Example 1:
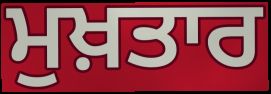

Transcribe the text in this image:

ਮੁਖ਼ਤਾਰ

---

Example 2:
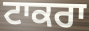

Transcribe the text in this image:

ਟਾਕਰਾ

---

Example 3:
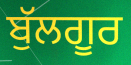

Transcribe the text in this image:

ਬੁੱਲਗੂਰ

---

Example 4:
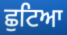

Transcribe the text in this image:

ਛੁਟਿਆ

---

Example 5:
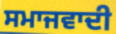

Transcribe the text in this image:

ਸਮਾਜਵਾਦੀ